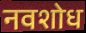
नवशोध